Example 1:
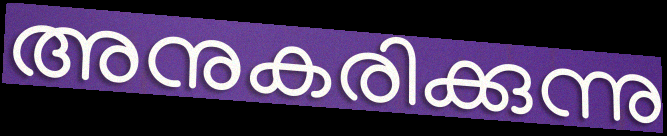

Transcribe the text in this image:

അനുകരിക്കുന്നു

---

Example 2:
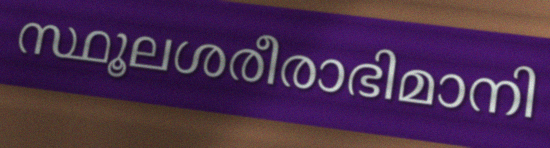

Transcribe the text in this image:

സ്ഥൂലശരീരാഭിമാനി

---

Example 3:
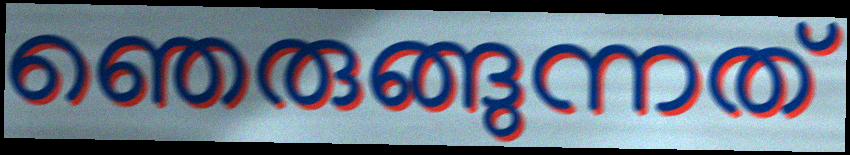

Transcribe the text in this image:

ഞെരുങ്ങുന്നത്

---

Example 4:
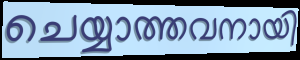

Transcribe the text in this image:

ചെയ്യാത്തവനായി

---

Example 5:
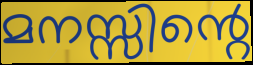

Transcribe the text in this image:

മനസ്സിന്റെ